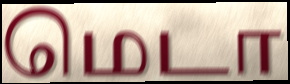
மெடா